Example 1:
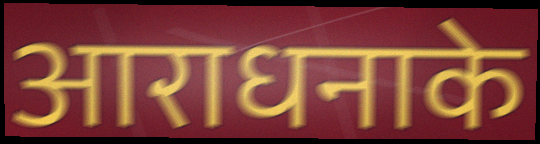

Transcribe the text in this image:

आराधनाके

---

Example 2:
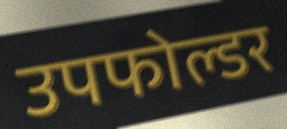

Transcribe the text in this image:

उपफोल्डर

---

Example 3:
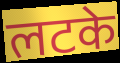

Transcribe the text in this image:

लटके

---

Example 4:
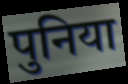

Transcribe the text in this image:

पुनिया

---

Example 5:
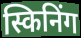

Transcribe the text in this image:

स्किनिंग